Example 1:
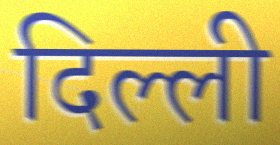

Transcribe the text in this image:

दिल्‍ली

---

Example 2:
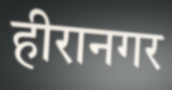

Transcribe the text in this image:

हीरानगर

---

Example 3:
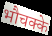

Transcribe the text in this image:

भौचक्के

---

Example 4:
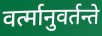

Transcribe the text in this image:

वर्त्मानुवर्तन्ते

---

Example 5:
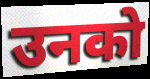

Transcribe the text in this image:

उनको